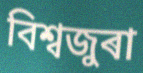
বিশ্বজুৰা